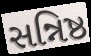
સન્નિષ્ઠ